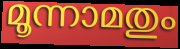
മൂന്നാമതും